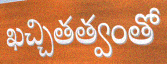
ఖచ్చితత్వంతో